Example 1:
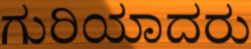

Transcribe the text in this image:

ಗುರಿಯಾದರು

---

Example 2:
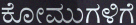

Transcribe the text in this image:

ಕೋಮುಗಳಿಗೆ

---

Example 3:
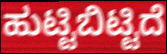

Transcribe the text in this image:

ಹುಟ್ಟಿಬಿಟ್ಟಿದೆ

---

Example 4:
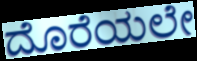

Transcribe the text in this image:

ದೊರೆಯಲೇ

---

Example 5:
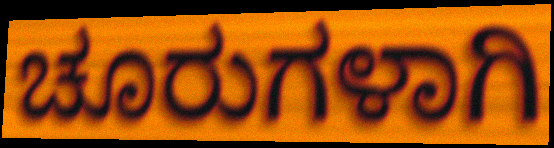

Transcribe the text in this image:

ಚೂರುಗಳಾಗಿ